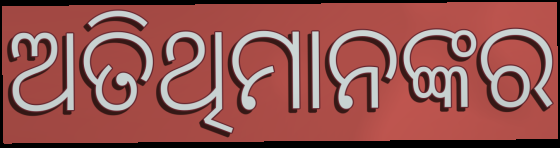
ଅତିଥିମାନଙ୍କର